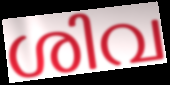
ശിവ